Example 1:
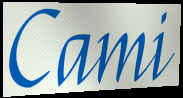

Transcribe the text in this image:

Cami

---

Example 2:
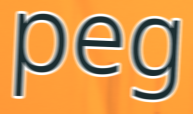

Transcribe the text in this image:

peg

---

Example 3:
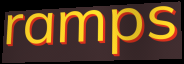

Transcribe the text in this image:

ramps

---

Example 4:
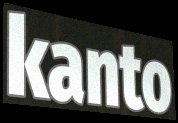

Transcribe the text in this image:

kanto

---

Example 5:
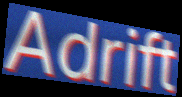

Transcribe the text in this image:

Adrift